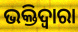
ଭକ୍ତିଦ୍ଵାରା